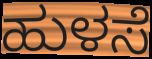
ಹುಳಸೆ